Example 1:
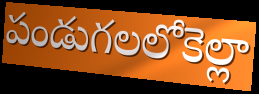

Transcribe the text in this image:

పండుగలలోకెల్లా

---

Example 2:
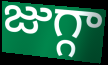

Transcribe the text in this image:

జుగ్గా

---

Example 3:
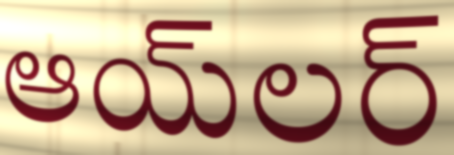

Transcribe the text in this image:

ఆయ్‌లర్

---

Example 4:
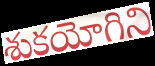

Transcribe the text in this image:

శుకయోగిని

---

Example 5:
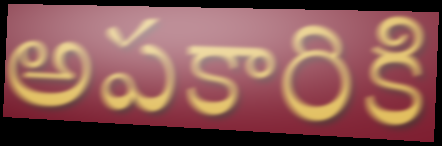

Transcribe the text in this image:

అపకారికి